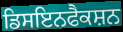
ਡਿਸਇਨਫੈਕਸ਼ਨ